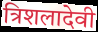
त्रिशलादेवी